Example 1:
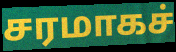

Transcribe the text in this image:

சரமாகச்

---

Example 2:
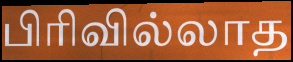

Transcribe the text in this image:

பிரிவில்லாத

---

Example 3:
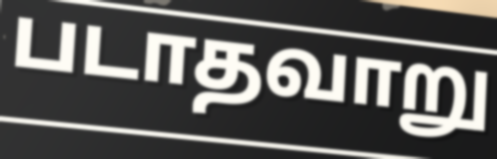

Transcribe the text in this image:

படாதவாறு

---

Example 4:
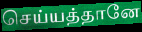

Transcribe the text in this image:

செய்யத்தானே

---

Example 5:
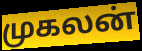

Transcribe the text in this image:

முகலன்